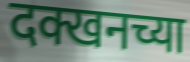
दक्खनच्या